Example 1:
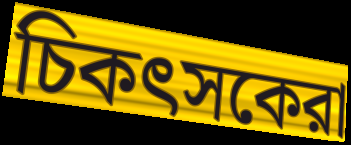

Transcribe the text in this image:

চিকৎসকেরা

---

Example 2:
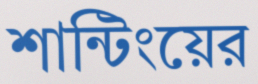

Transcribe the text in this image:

শান্টিংয়ের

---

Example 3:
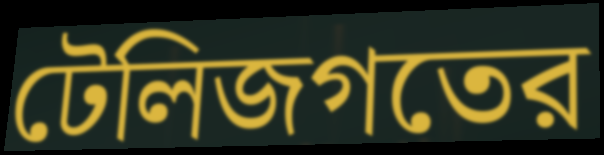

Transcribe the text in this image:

টেলিজগতের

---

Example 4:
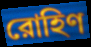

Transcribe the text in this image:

রোহিণ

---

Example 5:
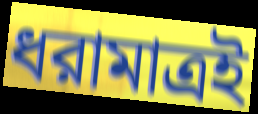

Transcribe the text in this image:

ধরামাত্রই